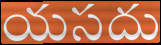
యసదు